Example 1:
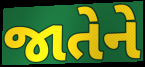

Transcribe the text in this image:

જાતેને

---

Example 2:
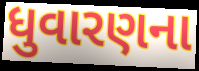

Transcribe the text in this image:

ધુવારણના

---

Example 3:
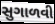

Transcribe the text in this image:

સુગાળવી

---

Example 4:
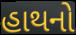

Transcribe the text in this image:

હાથનો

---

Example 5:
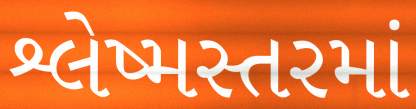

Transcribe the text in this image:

શ્લેષ્મસ્તરમાં